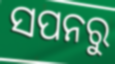
ସପନରୁ